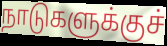
நாடுகளுக்குச்